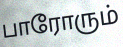
பாரோரும்